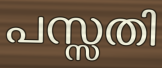
പസ്സതി